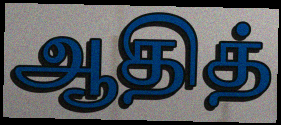
ஆதித்